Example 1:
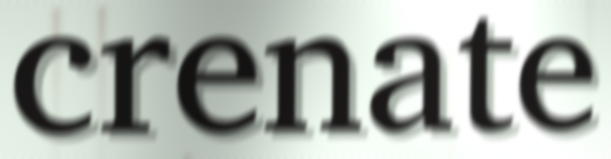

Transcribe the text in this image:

crenate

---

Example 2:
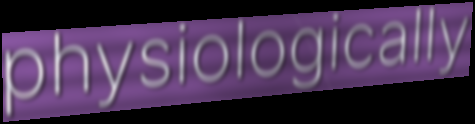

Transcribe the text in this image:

physiologically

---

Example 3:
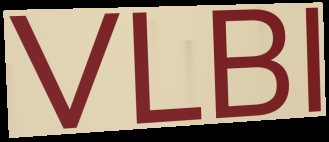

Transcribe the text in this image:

VLBI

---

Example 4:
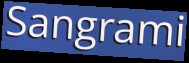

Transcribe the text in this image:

Sangrami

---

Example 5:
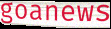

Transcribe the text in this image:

goanews